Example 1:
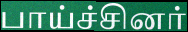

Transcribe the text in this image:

பாய்ச்சினர்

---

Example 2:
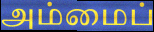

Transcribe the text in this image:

அம்மைப்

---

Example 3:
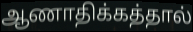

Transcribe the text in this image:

ஆணாதிக்கத்தால்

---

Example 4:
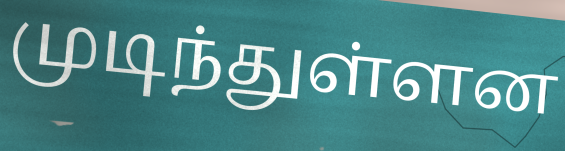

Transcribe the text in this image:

முடிந்துள்ளன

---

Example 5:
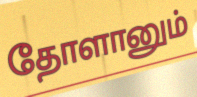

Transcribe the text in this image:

தோளானும்